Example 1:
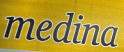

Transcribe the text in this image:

medina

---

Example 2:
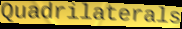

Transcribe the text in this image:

Quadrilaterals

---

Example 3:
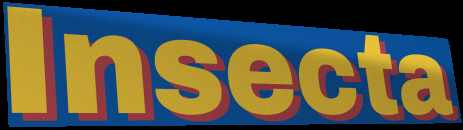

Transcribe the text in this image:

Insecta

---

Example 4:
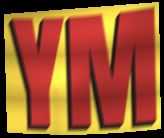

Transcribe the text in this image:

YM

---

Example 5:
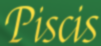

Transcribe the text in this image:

Piscis